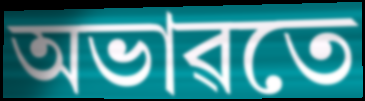
অভাৱতে